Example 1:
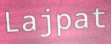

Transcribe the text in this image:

Lajpat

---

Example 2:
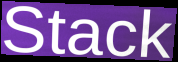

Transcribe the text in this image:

Stack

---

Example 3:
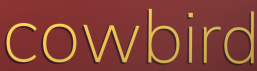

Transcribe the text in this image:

cowbird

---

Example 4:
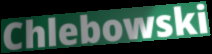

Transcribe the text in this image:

Chlebowski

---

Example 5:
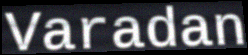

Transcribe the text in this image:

Varadan